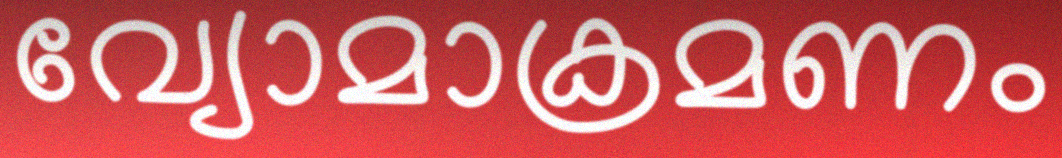
വ്യോമാക്രമണം